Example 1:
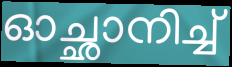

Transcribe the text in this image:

ഓച്ഛാനിച്ച്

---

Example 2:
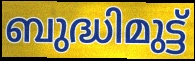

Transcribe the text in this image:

ബുദ്ധിമുട്ട്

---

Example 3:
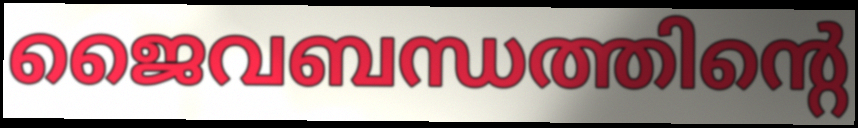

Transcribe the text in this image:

ജൈവബന്ധത്തിന്റെ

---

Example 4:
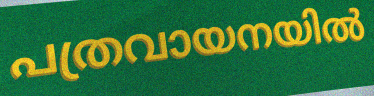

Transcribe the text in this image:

പത്രവായനയിൽ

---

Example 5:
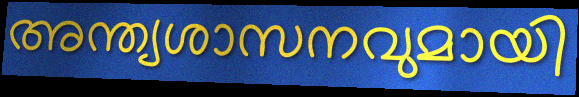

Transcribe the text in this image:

അന്ത്യശാസനവുമായി